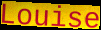
Louise